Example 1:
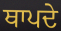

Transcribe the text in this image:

ਥਾਪਦੇ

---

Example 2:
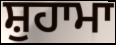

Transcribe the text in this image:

ਸ਼ੁਹਾਮਾ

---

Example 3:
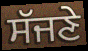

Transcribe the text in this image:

ਸੱਜਣੇ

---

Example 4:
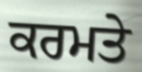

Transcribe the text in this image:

ਕਰਮਤੇ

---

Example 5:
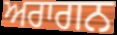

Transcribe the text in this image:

ਅਰਾਗਨ